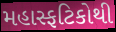
મહાસ્ફટિકોથી